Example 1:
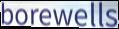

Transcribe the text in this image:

borewells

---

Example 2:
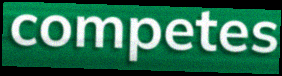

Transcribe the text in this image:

competes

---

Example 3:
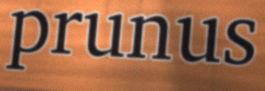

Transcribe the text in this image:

prunus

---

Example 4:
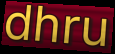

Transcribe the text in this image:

dhru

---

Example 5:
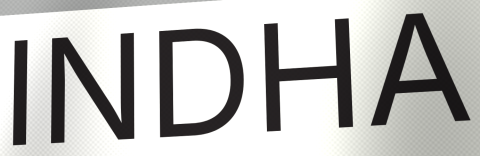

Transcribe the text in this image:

INDHA